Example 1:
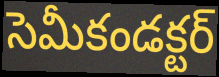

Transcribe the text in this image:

సెమీకండక్టర్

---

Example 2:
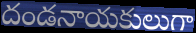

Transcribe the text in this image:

దండనాయకులుగా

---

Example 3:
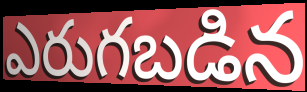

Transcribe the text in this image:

ఎరుగబడిన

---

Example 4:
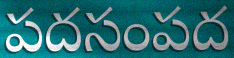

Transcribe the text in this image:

పదసంపద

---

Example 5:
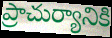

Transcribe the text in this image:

ప్రాచుర్యానికి